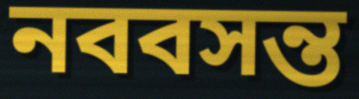
নববসন্ত